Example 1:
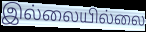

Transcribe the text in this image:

இல்லையில்லை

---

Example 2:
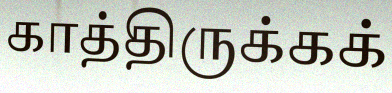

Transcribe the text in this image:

காத்திருக்கக்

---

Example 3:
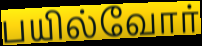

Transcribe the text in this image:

பயில்வோர்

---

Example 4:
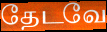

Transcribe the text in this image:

தேடவே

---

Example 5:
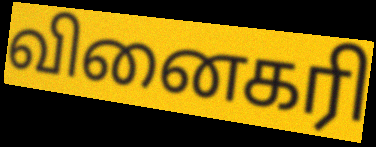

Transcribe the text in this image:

வினைகரி